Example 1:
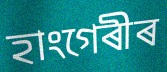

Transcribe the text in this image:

হাংগেৰীৰ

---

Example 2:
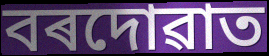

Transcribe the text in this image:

বৰদোৱাত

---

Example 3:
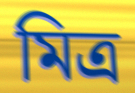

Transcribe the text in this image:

মিত্ৰ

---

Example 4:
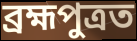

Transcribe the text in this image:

ব্ৰহ্মপুত্ৰত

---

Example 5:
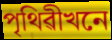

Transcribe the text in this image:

পৃথিৱীখনে